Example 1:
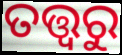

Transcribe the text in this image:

ତତ୍ତ୍ୱରୁ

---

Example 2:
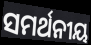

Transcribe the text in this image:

ସମର୍ଥନୀୟ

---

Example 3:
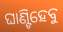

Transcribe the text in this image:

ଘାଣ୍ଟିହେବୁ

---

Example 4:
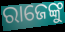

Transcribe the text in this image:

ରାଜେଙ୍କୁ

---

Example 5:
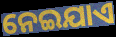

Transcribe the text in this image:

ନେଇଯାଏ